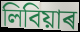
লিবিয়াৰ